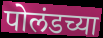
पोलंडच्या